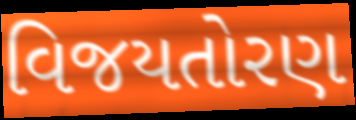
વિજયતોરણ